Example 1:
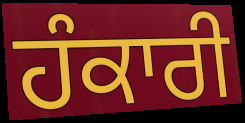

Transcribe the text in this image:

ਹੰਕਾਰੀ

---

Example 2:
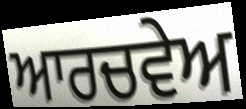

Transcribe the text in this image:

ਆਰਚਵੇਅ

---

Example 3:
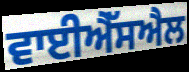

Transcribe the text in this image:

ਵਾਈਐੱਸਐਲ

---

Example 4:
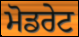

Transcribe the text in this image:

ਮੋਡਰੇਟ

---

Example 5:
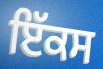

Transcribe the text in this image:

ਇੱਕਸ